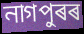
নাগপুৰৰ